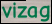
vizag